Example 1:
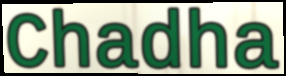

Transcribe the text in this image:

Chadha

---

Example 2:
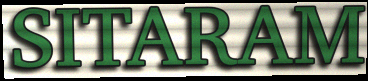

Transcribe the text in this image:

SITARAM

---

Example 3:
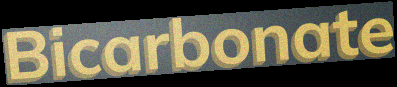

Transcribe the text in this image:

Bicarbonate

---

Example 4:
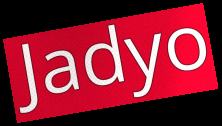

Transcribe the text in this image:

Jadyo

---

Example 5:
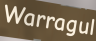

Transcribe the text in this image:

Warragul